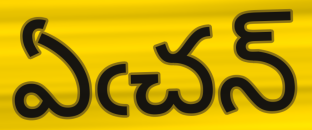
ఏఁచన్